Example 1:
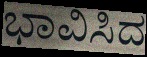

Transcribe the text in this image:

ಭಾವಿಸಿದ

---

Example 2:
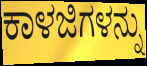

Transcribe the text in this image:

ಕಾಳಜಿಗಳನ್ನು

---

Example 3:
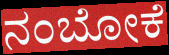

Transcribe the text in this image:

ನಂಬೋಕೆ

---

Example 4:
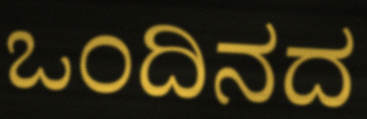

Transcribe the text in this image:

ಒಂದಿನದ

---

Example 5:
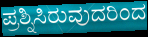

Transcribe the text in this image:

ಪ್ರಶ್ನಿಸಿರುವುದರಿಂದ